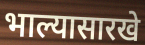
भाल्यासारखे